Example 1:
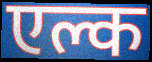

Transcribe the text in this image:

एल्क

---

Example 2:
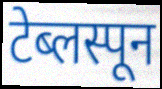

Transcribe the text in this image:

टेब्लस्पून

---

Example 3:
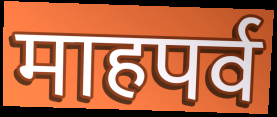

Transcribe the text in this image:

माहपर्व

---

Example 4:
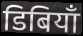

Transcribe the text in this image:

डिबियाँ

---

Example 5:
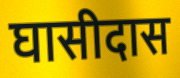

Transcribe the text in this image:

घासीदास